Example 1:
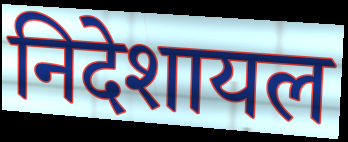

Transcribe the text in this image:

निदेशायल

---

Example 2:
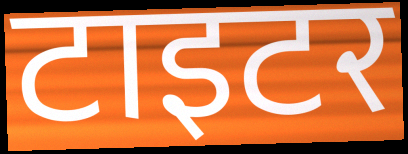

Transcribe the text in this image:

टाइटर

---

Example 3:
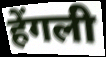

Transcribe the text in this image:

हेंगली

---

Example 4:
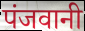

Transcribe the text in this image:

पंजवानी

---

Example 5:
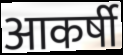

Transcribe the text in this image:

आकर्षी